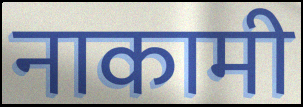
नाकामी